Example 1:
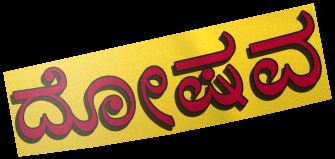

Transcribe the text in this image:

ದೋಷವ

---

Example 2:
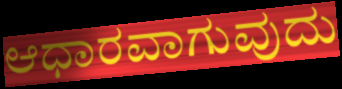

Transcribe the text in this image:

ಆಧಾರವಾಗುವುದು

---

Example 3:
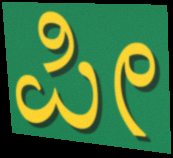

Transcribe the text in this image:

ಪೀ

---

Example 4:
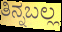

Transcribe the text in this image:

ತಿನ್ನಬಲ್ಲ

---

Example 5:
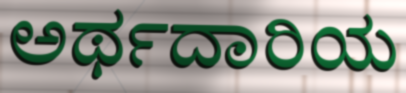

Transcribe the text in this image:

ಅರ್ಥದಾರಿಯ